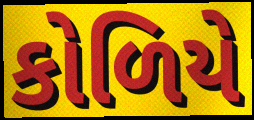
કોળિયે